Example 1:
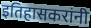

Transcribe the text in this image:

इतिहासकरांनी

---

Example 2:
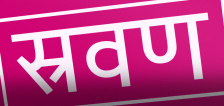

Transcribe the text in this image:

स्रवण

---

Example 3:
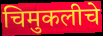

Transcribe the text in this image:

चिमुकलीचे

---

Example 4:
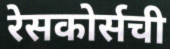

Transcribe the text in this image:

रेसकोर्सची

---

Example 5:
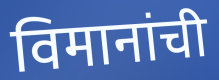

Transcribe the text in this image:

विमानांची